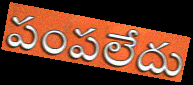
పంపలేదు